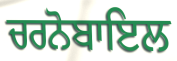
ਚਰਨੋਬਾਇਲ